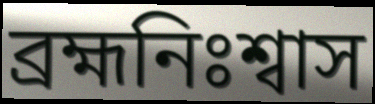
ব্রহ্মনিঃশ্বাস